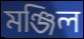
মঞ্জিল